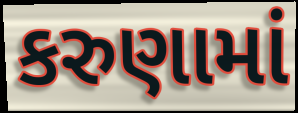
કરુણામાં